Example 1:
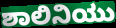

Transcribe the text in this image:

ಶಾಲಿನಿಯು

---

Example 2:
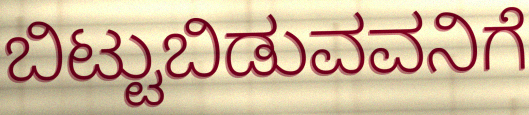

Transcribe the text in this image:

ಬಿಟ್ಟುಬಿಡುವವನಿಗೆ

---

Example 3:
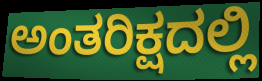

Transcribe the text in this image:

ಅಂತರಿಕ್ಷದಲ್ಲಿ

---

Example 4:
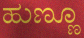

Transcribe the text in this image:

ಹುಣ್ಣೂ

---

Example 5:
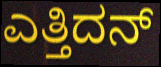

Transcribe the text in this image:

ಎತ್ತಿದನ್